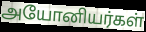
அயோனியர்கள்